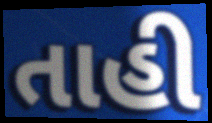
તાહી